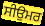
ਸੀਉਮਰ